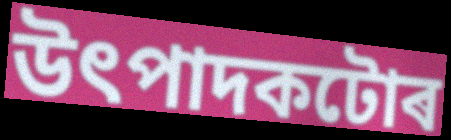
উৎপাদকটোৰ